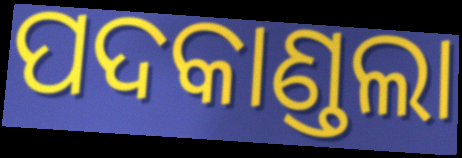
ପଦକାଣ୍ଡଲା